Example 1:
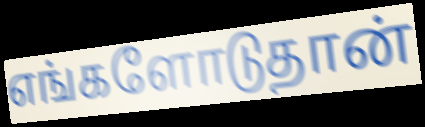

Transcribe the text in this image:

எங்களோடுதான்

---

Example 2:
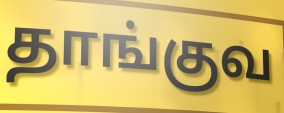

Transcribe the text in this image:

தாங்குவ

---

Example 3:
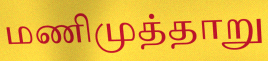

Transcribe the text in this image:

மணிமுத்தாறு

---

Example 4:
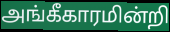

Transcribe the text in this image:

அங்கீகாரமின்றி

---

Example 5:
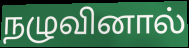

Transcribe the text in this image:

நழுவினால்